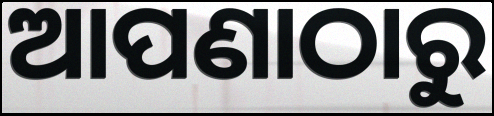
ଆପଣାଠାରୁ